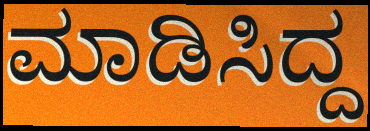
ಮಾಡಿಸಿದ್ದ